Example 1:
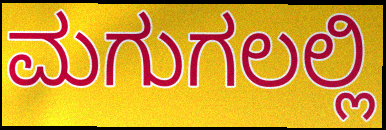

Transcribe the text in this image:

ಮಗುಗಲಲ್ಲಿ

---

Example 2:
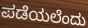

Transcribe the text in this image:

ಪಡೆಯಲೆಂದು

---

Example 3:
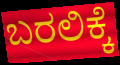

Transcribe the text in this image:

ಬರಲಿಕ್ಕೆ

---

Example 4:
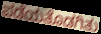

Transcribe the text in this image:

ಪಡೆಯತೊಡಗಿತು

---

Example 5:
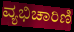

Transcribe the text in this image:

ವ್ಯಭಿಚಾರಿಣಿ